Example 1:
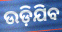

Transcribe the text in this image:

ଉଡ଼ିଯିବ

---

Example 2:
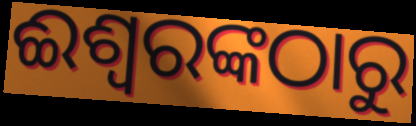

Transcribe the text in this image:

ଈଶ୍ଵରଙ୍କଠାରୁ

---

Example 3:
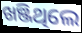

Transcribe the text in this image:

ଖଞ୍ଜିଥିଲେ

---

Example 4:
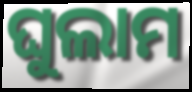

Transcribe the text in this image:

ଘୁଲାମ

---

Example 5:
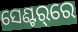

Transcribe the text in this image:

ସେଣ୍ଟର୍‌ରେ